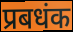
प्रबधंक